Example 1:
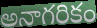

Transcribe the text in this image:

అనాగరికం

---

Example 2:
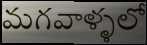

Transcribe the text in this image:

మగవాళ్ళలో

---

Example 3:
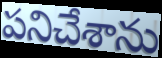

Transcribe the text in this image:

పనిచేశాను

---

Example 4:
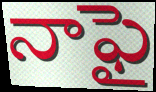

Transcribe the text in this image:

నాఫై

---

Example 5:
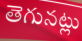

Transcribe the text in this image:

తెగునట్లు